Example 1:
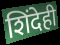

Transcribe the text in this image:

शिंदेही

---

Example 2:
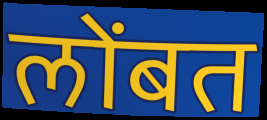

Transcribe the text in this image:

लोंबत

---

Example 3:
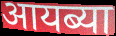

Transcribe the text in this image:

आयब्या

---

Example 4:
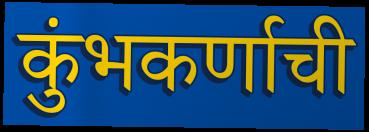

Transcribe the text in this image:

कुंभकर्णाची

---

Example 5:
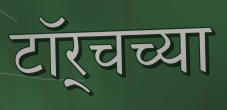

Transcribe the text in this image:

टॉर्चच्या